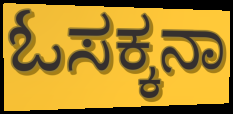
ಓಸಕ್ಕನಾ